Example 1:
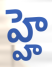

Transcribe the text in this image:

హ్హె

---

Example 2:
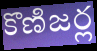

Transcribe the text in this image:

కొణిజర్ల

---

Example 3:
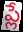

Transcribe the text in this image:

ప్లే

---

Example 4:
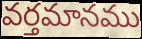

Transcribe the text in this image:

వర్తమానము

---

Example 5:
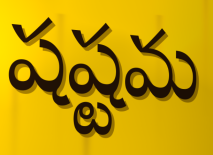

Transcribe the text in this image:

షష్టమ